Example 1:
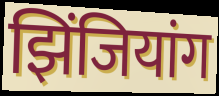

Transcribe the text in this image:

झिंजियांग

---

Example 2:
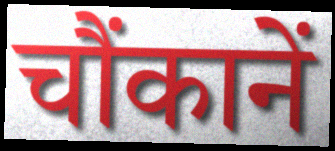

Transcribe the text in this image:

चौंकानें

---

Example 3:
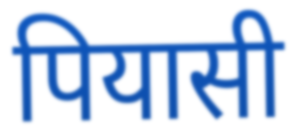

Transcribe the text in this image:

पियासी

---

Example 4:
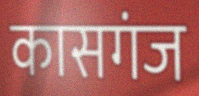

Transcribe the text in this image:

कासगंज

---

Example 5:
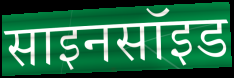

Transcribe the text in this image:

साइनसॉइड